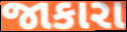
જાકારા